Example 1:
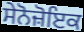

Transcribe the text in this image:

ਸੇਨੋਜ਼ੋਇਕ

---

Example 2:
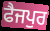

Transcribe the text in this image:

ਫੈਜਪੁਰ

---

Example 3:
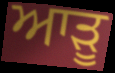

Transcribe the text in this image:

ਆੜੂ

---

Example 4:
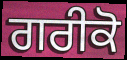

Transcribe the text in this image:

ਗਰੀਕੋ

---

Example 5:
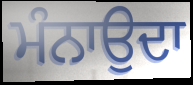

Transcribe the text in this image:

ਮੰਨਾਉਦਾ